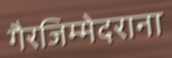
गैरजिम्मेदराना